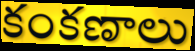
కంకణాలు